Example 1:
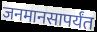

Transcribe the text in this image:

जनमानसापर्यंत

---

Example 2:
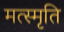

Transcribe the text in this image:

मत्स्मृति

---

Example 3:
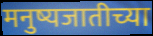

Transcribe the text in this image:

मनुष्यजातीच्या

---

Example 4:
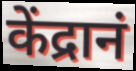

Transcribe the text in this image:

केंद्रानं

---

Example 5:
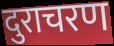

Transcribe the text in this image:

दुराचरण